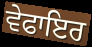
ਵੇਫਾਇਰ